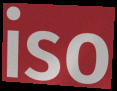
iso